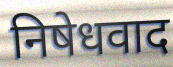
निषेधवाद